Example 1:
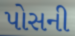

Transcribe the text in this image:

પોસની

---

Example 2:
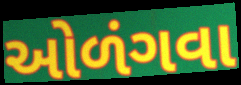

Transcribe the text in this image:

ઓળંગવા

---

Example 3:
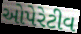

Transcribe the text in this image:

ઓપેરેટીવ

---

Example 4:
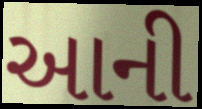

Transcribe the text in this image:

આની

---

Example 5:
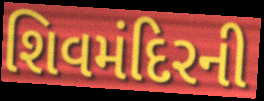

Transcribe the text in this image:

શિવમંદિરની